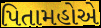
પિતામહોએ